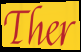
Ther